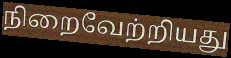
நிறைவேற்றியது